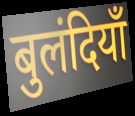
बुलंदियाँ